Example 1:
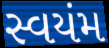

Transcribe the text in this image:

સ્વયંમ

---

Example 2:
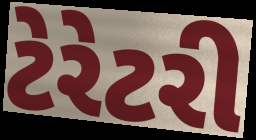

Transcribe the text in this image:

ટેરેટરી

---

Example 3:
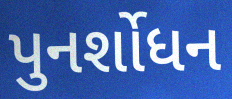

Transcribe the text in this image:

પુનર્શોધન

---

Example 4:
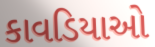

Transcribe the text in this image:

કાવડિયાઓ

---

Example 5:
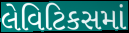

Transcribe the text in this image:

લેવિટિકસમાં